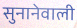
सुनानेवाली